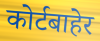
कोर्टबाहेर